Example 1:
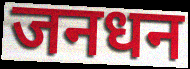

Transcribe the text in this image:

जनधन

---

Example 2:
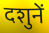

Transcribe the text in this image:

दशुनें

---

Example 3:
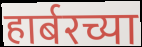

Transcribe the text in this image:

हार्बरच्या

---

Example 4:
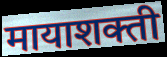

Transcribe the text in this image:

मायाशक्ती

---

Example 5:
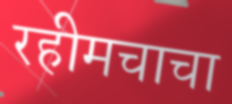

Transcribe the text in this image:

रहीमचाचा